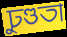
ঢুণ্ডতা